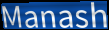
Manash